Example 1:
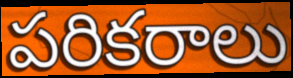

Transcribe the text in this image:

పరికరాలు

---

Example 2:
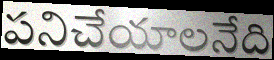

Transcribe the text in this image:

పనిచేయాలనేది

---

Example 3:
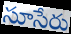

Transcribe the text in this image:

సూసేరు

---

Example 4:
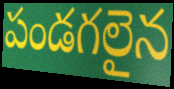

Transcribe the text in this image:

పండగలైన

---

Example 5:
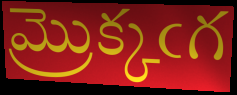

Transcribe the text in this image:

మ్రొక్కఁగ